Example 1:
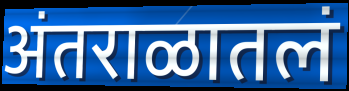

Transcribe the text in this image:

अंतराळातलं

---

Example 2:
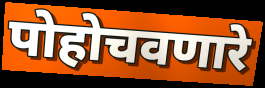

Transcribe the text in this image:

पोहोचवणारे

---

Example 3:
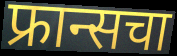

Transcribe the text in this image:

फ्रान्सचा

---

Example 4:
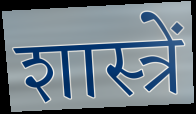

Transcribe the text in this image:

शास्त्रें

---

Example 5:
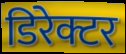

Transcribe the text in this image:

डिरेक्टर